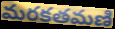
మరకతమణి